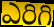
ఎరిగి